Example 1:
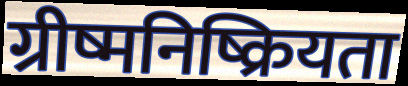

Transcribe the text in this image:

ग्रीष्मनिष्क्रियता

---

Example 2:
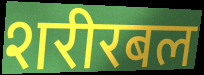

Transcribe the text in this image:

शरीरबल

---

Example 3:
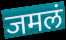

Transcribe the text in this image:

जमलं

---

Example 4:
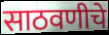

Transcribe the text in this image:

साठवणीचे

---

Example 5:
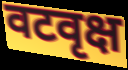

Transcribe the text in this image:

वटवृक्ष